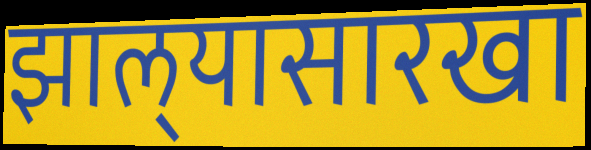
झाल्यासारखा